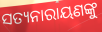
ସତ୍ୟନାରାୟଣଙ୍କୁ